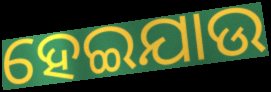
ହେଇଯାଉ